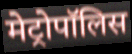
मेट्रोपॉलिस